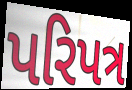
પરિપત્ર